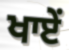
ਖਾਏਂ